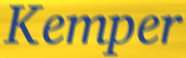
Kemper